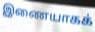
இணையாகக்